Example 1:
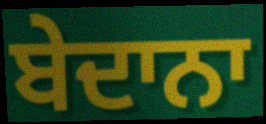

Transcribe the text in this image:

ਬੇਦਾਨਾ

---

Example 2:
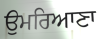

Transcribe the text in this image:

ਉਮਰਿਆਣਾ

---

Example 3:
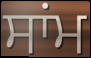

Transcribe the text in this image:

ਸਾਂਮ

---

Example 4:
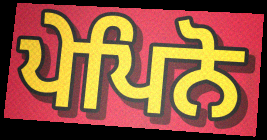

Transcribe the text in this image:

ਪੇਪਿਨੋ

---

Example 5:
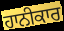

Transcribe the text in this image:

ਹਾਨੀਕਾਰ